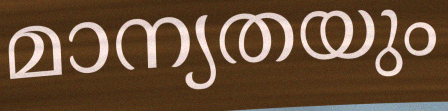
മാന്യതയും